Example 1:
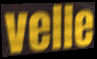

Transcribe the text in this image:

velle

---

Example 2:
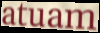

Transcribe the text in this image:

atuam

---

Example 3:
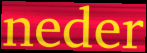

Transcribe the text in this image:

neder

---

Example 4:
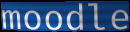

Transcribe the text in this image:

moodle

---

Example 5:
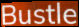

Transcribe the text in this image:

Bustle